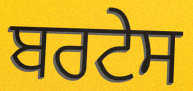
ਬਰਟੇਸ